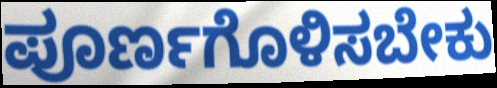
ಪೂರ್ಣಗೊಳಿಸಬೇಕು